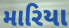
મારિયા